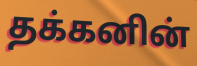
தக்கனின்